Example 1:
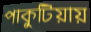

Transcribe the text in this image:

পাকুটিয়ায়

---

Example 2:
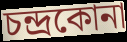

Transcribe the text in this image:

চন্দ্রকোনা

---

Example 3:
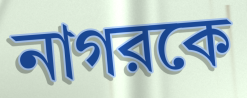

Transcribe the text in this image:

নাগরকে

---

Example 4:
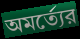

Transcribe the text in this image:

অমর্ত্যের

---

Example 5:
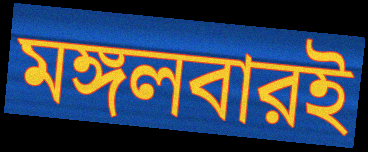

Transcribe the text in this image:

মঙ্গলবারই